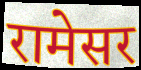
रामेसर